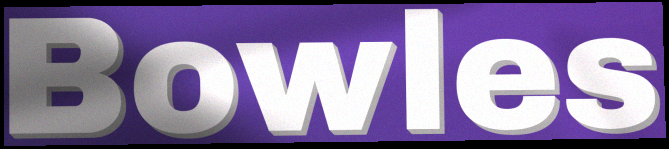
Bowles